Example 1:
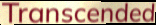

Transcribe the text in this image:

Transcended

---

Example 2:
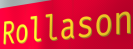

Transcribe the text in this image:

Rollason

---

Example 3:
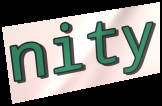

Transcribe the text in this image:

nity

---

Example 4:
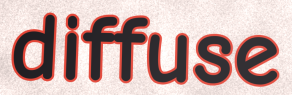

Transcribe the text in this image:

diffuse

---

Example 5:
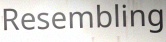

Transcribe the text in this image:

Resembling